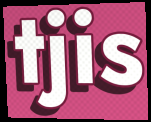
tjis